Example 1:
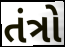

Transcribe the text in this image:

તંત્રો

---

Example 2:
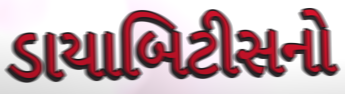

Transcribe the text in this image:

ડાયાબિટીસનો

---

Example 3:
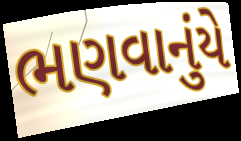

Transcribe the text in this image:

ભણવાનુંયે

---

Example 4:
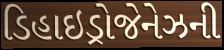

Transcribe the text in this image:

ડિહાઇડ્રોજેનેઝની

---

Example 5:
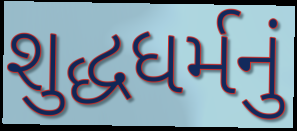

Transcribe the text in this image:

શુદ્ધધર્મનું